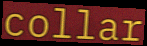
collar